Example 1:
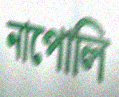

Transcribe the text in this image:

নাপোলি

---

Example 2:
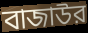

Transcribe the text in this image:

বাজাউর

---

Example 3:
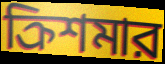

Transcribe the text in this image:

ক্রিশমার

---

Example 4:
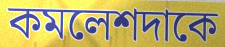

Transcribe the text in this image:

কমলেশদাকে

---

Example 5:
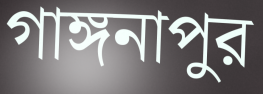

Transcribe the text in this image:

গাঙ্গনাপুর